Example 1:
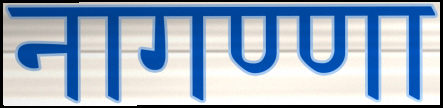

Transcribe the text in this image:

नागण्णा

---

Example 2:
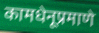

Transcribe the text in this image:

कामधेनूप्रमाणे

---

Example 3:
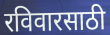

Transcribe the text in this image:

रविवारसाठी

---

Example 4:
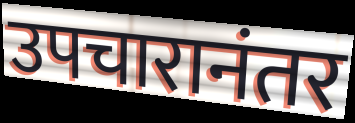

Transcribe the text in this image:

उपचारानंतर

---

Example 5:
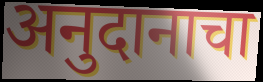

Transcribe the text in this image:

अनुदानाचा